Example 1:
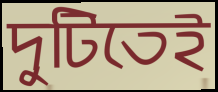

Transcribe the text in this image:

দুটিতেই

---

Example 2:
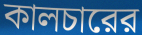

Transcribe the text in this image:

কালচারের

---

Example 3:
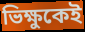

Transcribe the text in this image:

ভিক্ষুকেই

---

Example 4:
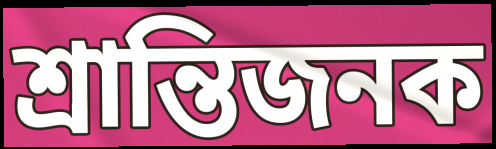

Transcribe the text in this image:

শ্রান্তিজনক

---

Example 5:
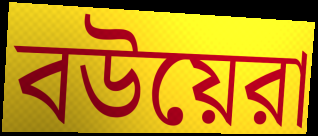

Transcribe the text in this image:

বউয়েরা